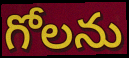
గోలను